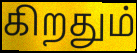
கிறதும்